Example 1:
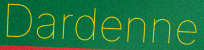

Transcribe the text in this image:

Dardenne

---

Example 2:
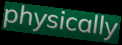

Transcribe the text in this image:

physically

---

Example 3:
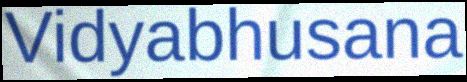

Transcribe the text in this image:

Vidyabhusana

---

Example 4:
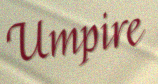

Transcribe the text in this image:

Umpire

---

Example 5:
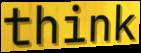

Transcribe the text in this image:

think